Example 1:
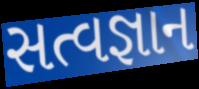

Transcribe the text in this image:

સત્વજ્ઞાન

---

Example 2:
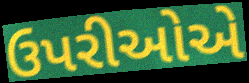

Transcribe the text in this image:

ઉપરીઓએ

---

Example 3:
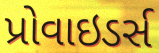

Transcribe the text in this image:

પ્રોવાઇડર્સ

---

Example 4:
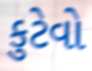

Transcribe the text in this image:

કુટેવો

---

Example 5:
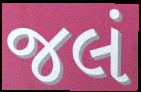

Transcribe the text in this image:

જલં